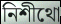
নিশীথো